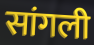
सांगली